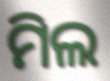
ମିଲ